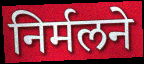
निर्मलने